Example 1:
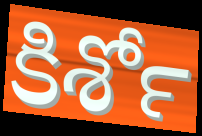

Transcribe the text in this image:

కిశోర్‍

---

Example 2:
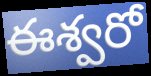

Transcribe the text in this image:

ఈశ్వరో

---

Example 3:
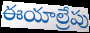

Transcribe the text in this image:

ఈయాల్రేపు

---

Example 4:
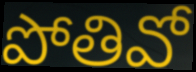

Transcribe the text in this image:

పోతివో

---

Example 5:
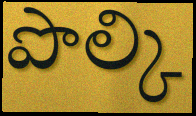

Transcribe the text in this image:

పొల్కి